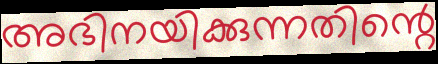
അഭിനയിക്കുന്നതിന്റെ